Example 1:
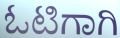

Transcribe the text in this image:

ಓಟಿಗಾಗಿ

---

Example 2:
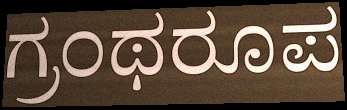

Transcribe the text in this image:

ಗ್ರಂಥರೂಪ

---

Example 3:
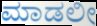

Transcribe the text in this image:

ಮಾಡಲೀ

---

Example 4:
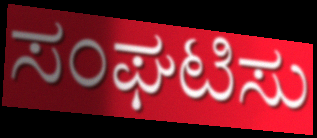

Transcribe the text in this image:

ಸಂಘಟಿಸು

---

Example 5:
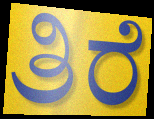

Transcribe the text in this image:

ತಿರೆ